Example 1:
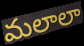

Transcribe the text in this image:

మలాలా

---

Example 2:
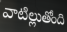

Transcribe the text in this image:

వాటిల్లుతోంది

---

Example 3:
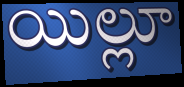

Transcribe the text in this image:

యిల్లూ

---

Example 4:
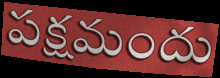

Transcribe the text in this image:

పక్షమందు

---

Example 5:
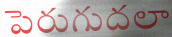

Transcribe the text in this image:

పెరుగుదలా